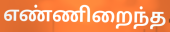
எண்ணிறைந்த